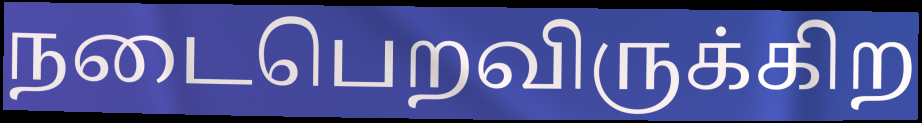
நடைபெறவிருக்கிற